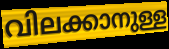
വിലക്കാനുള്ള